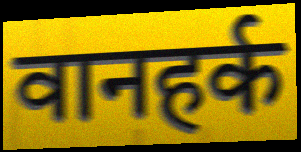
वानहर्क